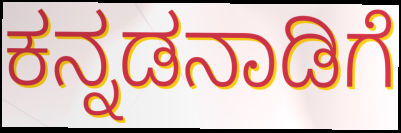
ಕನ್ನಡನಾಡಿಗೆ